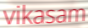
vikasam